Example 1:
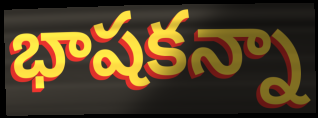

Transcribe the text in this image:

భాషకన్నా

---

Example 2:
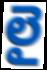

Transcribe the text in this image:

లై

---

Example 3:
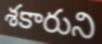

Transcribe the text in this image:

శకారుని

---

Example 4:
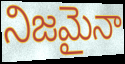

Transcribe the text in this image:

నిజమైనా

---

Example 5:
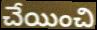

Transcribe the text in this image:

చేయించి